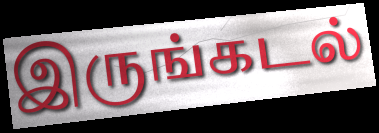
இருங்கடல்